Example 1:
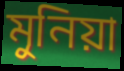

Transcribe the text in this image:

মুনিয়া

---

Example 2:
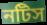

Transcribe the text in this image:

নটিস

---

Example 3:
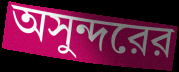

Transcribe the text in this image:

অসুন্দরের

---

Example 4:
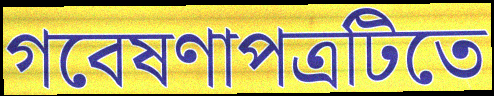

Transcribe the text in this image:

গবেষণাপত্রটিতে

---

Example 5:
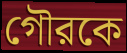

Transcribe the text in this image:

গৌরকে